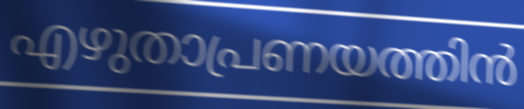
എഴുതാപ്രണയത്തിൻ